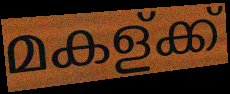
മകള്ക്ക്